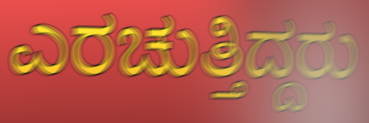
ಎರಚುತ್ತಿದ್ದರು